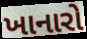
ખાનારો